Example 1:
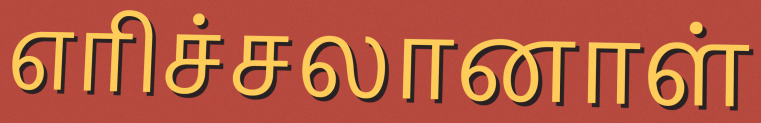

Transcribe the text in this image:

எரிச்சலானாள்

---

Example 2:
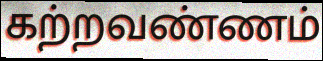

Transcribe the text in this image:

கற்றவண்ணம்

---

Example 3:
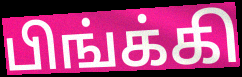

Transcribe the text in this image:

பிங்க்கி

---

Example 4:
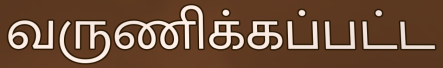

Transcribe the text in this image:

வருணிக்கப்பட்ட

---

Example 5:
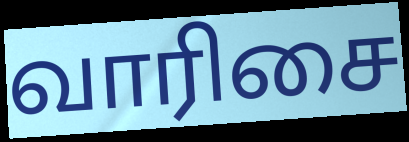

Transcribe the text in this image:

வாரிசை